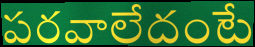
పరవాలేదంటే